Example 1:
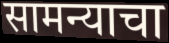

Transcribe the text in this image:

सामन्याचा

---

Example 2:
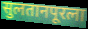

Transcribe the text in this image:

सुलतानपूरला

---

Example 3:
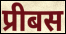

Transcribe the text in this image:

प्रीबस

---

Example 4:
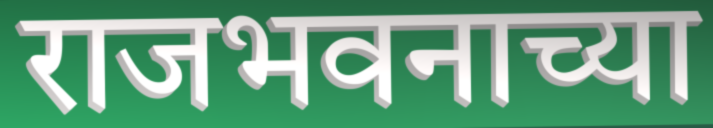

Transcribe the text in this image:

राजभवनाच्या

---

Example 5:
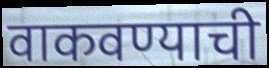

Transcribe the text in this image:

वाकवण्याची